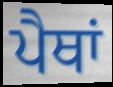
ਪੈਥਾਂ